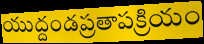
యుద్దండప్రతాపక్రియం